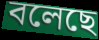
বলেছে